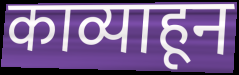
काव्याहून